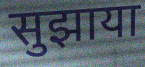
सुझाया